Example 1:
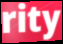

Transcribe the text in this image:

rity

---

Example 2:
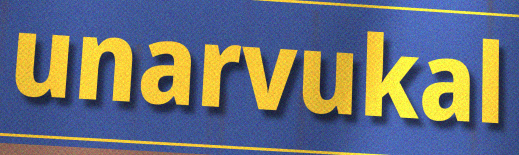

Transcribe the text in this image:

unarvukal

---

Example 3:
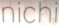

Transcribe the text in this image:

nichi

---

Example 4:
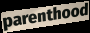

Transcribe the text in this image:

parenthood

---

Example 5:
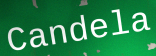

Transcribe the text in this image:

Candela